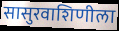
सासुरवाशिणीला